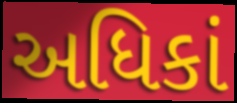
અધિકાં